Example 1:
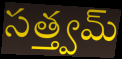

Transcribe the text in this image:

సత్త్వమ్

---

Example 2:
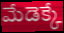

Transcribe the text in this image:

మేడెక్కే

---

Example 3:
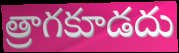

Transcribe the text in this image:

త్రాగకూడదు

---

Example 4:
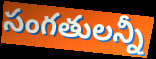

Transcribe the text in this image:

సంగతులన్నీ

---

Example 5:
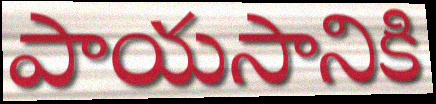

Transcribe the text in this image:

పాయసానికి